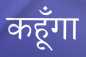
कहूँगा